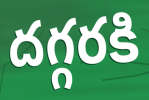
దగ్గరకి